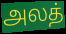
அலத்